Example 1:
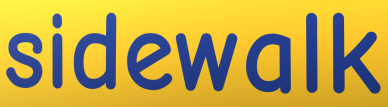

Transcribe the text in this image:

sidewalk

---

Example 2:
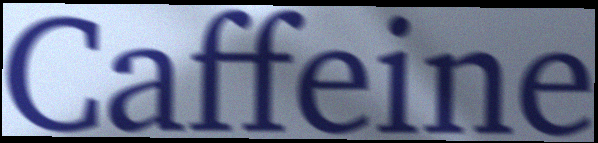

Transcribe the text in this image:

Caffeine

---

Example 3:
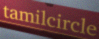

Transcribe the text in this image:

tamilcircle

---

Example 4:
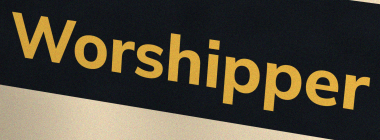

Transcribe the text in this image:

Worshipper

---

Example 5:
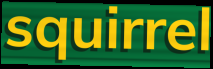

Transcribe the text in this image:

squirrel